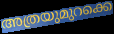
അത്രയുമുറക്കെ